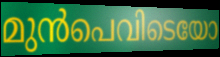
മുൻപെവിടെയോ